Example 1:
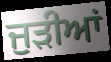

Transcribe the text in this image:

ਜੁੜੀਆਂ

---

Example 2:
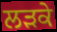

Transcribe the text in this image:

ਲੜਕੇ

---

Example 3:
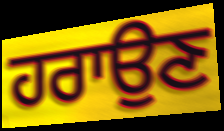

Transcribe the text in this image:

ਹਰਾਉਣ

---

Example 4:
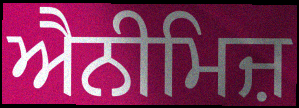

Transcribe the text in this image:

ਐਨੀਮਿਜ਼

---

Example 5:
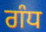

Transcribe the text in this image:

ਗੰਧ